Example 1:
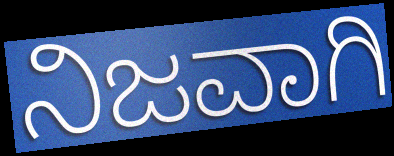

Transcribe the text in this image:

ನಿಜವಾಗಿ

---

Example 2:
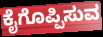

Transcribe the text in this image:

ಕೈಗೊಪ್ಪಿಸುವ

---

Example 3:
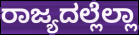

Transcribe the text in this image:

ರಾಜ್ಯದಲ್ಲೆಲ್ಲಾ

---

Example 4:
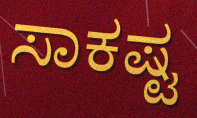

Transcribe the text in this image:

ಸಾಕಷ್ಟ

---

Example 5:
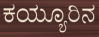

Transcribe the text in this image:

ಕಯ್ಯೂರಿನ